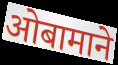
ओबामाने